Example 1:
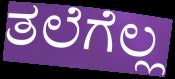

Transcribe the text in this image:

ತಲೆಗೆಲ್ಲ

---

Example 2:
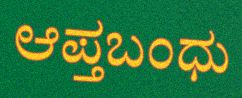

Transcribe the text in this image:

ಆಪ್ತಬಂಧು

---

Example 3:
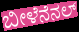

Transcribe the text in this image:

ಬೀಳೆನೆನಲ್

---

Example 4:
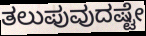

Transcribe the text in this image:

ತಲುಪುವುದಷ್ಟೇ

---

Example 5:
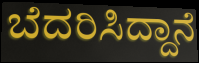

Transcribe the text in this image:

ಬೆದರಿಸಿದ್ದಾನೆ